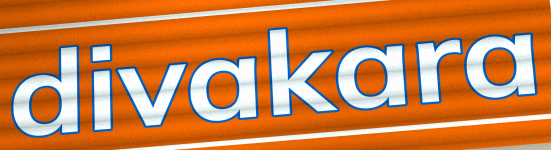
divakara